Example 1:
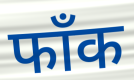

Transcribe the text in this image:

फाँक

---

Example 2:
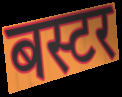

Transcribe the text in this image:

बस्टर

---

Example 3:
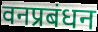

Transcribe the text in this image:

वनप्रबंधन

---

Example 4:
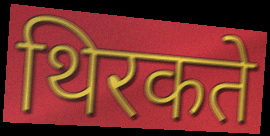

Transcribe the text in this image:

थिरकते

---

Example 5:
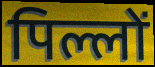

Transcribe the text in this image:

पिल्लों